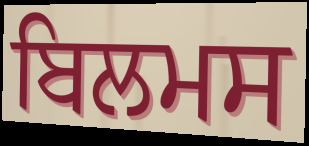
ਬਿਲਮਸ